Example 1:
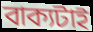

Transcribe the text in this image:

বাক্যটাই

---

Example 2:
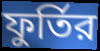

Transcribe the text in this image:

ফুর্তির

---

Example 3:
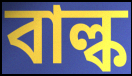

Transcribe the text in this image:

বাল্ক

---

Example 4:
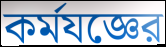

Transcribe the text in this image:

কর্মযজ্ঞের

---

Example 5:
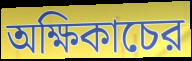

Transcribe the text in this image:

অক্ষিকাচের